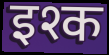
इश्क